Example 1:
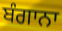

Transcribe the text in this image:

ਬੰਗਾਨਾ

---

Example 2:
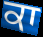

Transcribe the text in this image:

ਕਾ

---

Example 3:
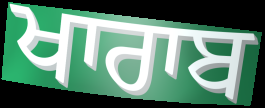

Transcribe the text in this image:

ਖਾਰਾਬ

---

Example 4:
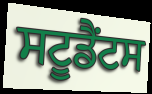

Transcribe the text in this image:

ਸਟੂਡੈਂਟਸ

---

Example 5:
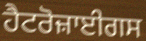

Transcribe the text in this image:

ਹੈਟਰੋਜ਼ਾਈਗਸ